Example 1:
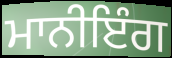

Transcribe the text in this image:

ਮਾਨੀਇੰਗ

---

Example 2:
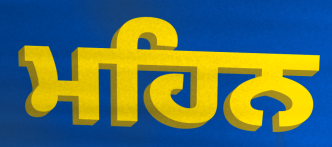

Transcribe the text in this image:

ਮਹਿਨ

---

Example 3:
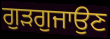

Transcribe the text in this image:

ਗੁੜਗੁਜਾਉਣ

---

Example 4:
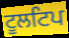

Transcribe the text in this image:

ਟੂਲਟਿਪ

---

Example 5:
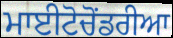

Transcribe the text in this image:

ਮਾਈਟੋਚੋਂਡਰੀਆ